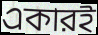
একারই